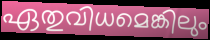
ഏതുവിധമെങ്കിലും